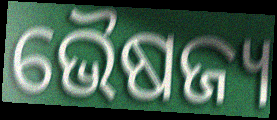
ଭୈଷଜ୍ୟ